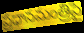
ప్రధానమంత్రిపై